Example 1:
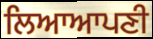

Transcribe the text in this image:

ਲਿਆਆਪਣੀ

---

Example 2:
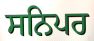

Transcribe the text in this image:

ਸਨਿਪਰ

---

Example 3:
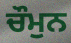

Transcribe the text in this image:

ਚੌਮੁਨ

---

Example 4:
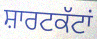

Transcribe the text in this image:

ਸ਼ਾਰਟਕੱਟਾਂ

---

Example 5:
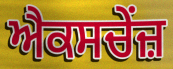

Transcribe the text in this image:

ਐਕਸਚੇਂਜ਼